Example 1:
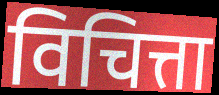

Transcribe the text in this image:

विचित्ता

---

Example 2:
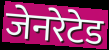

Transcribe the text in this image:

जेनरेटेड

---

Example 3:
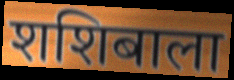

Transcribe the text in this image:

शशिबाला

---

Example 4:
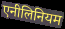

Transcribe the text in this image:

एनीलिनियम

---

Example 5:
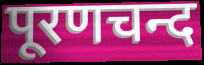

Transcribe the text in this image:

पूरणचन्द